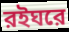
রইঘরে